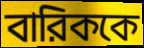
বারিককে